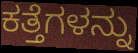
ಕತ್ತೆಗಳನ್ನು